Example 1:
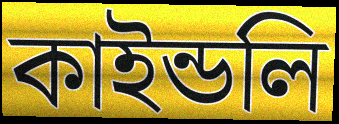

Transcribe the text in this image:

কাইন্ডলি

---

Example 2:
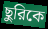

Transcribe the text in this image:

ছুরিকে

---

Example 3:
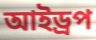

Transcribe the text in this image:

আইড্রপ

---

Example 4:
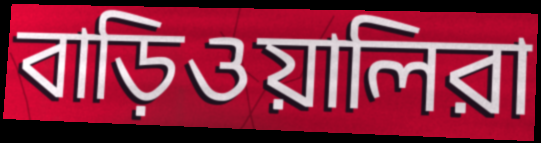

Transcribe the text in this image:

বাড়িওয়ালিরা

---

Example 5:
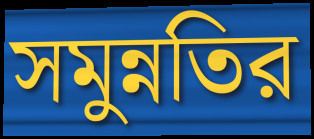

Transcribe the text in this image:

সমুন্নতির